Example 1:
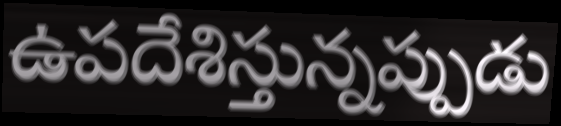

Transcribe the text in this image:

ఉపదేశిస్తున్నప్పుడు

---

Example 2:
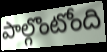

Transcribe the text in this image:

పాల్గొంటోంది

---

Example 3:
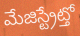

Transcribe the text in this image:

మేజిస్ట్రేట్తో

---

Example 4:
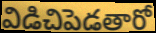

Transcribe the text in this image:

విడిచిపెడతారో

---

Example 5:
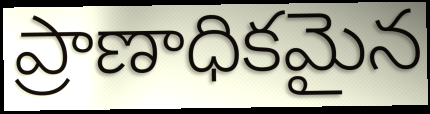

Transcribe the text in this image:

ప్రాణాధికమైన